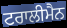
ਟਰਾਲੀਮੈਨ